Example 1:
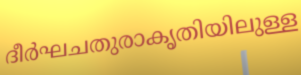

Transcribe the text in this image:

ദീർഘചതുരാകൃതിയിലുള്ള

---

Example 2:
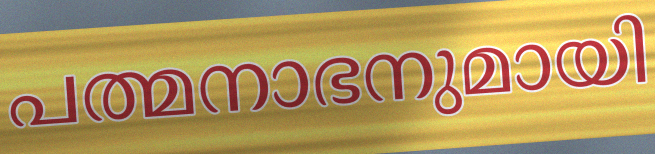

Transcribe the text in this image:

പത്മനാഭനുമായി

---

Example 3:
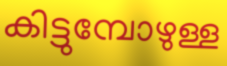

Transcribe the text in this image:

കിട്ടുമ്പോഴുള്ള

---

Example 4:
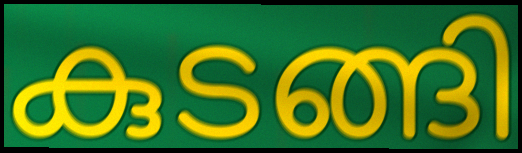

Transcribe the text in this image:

കുടങ്ങി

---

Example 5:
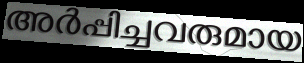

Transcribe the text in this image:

അർപ്പിച്ചവരുമായ